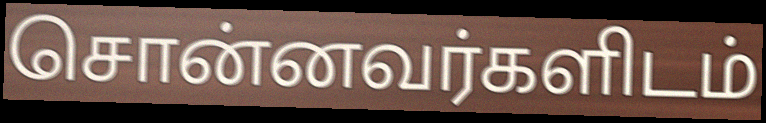
சொன்னவர்களிடம்